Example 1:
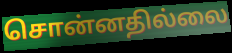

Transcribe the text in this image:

சொன்னதில்லை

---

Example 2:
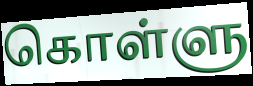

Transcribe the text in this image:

கொள்ளு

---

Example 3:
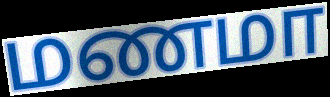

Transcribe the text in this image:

மணமா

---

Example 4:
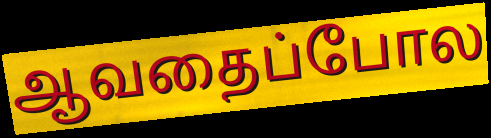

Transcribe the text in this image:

ஆவதைப்போல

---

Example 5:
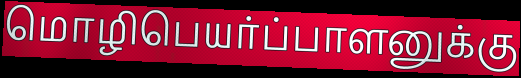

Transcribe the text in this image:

மொழிபெயர்ப்பாளனுக்கு